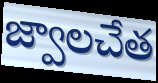
జ్వాలచేత